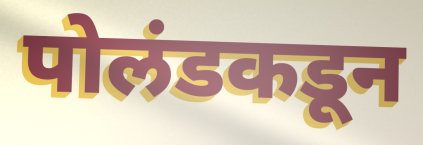
पोलंडकडून